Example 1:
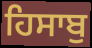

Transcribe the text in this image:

ਹਿਸਾਬੁ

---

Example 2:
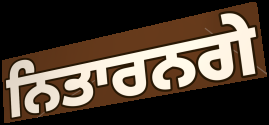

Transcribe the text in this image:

ਨਿਤਾਰਨਗੇ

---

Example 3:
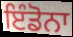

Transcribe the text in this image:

ਇੰਡੋਨਾ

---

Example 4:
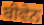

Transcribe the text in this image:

ਬੀਵੇਨ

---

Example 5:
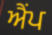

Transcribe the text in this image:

ਐਂਪ